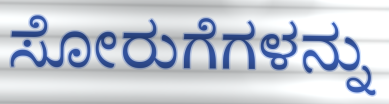
ಸೋರುಗೆಗಳನ್ನು